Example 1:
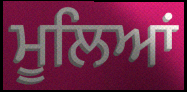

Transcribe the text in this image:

ਮੂਲਿਆਂ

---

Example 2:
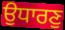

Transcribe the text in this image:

ਉਧਾਰਣੁ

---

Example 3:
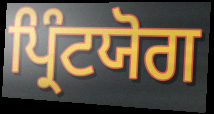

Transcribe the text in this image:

ਪ੍ਰਿੰਟਯੋਗ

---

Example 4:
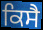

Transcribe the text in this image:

ਕਿਸੈ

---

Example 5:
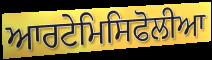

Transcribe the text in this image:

ਆਰਟੇਮਿਸਿਫੋਲੀਆ